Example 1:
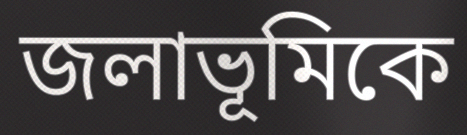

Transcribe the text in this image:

জলাভূমিকে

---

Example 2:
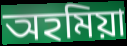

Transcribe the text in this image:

অহমিয়া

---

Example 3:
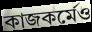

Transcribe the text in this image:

কাজকর্মেও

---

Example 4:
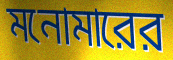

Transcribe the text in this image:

মনোমারের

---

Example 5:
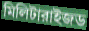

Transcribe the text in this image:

মিলিটারাইজড